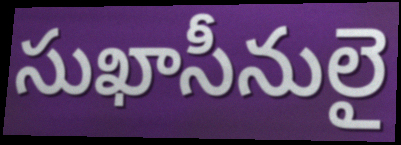
సుఖాసీనులై